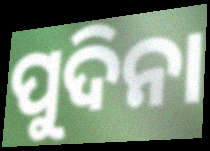
ପୁଦିନା